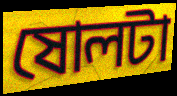
ষোলটা